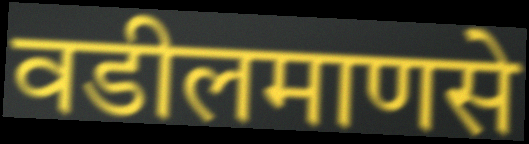
वडीलमाणसे